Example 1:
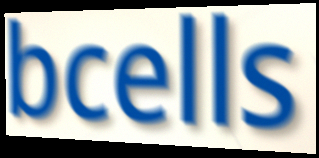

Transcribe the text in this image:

bcells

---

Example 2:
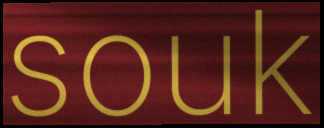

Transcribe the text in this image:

souk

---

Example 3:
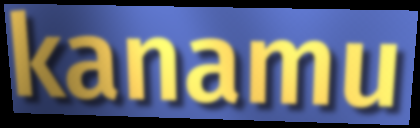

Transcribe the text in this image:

kanamu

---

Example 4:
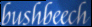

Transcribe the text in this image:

bushbeech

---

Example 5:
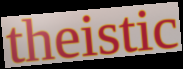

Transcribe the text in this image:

theistic